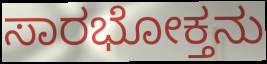
ಸಾರಭೋಕ್ತನು